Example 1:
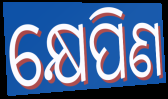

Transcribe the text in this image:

କ୍ଷେପିଣ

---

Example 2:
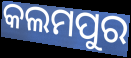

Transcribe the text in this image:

କଲମପୁର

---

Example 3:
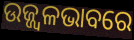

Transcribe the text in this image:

ଉଜ୍ଜ୍ୱଳଭାବରେ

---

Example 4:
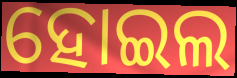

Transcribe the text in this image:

ହୋଇଲ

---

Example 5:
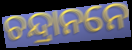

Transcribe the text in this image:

ଚନ୍ଦ୍ରାନନେ